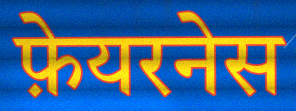
फ़ेयरनेस